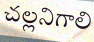
చల్లనిగాలి